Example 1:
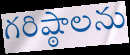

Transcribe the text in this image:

గరిష్ఠాలను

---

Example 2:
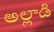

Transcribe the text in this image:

అల్లాడి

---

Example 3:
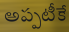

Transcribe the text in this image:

అప్పటీకే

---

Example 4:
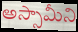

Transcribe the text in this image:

అస్సామీని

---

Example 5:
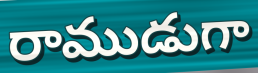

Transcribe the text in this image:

రాముడుగా